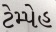
ટેમ્પેહ